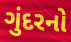
ગુંદરનો